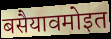
बसैयावमोइत